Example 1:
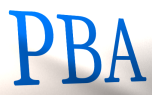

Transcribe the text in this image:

PBA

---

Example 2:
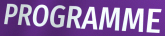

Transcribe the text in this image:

PROGRAMME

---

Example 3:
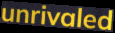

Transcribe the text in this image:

unrivaled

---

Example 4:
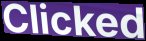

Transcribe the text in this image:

Clicked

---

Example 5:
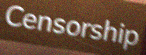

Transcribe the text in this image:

Censorship